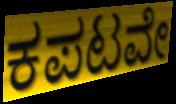
ಕಪಟವೇ